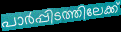
പാർപ്പിടത്തിലേക്ക്